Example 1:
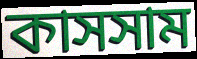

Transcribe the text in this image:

কাসসাম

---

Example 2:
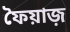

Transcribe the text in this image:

ফৈয়াজ়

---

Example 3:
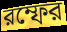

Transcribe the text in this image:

রম্ফের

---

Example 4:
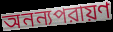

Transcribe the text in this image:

অনন্যপরায়ণ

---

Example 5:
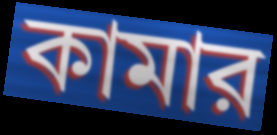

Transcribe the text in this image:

কামার